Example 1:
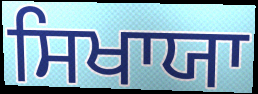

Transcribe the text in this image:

ਸਿਖਾਯਾ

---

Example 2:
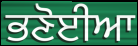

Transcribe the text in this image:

ਭਣੋਈਆ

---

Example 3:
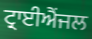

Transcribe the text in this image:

ਟ੍ਰਾਈਐਂਜਲ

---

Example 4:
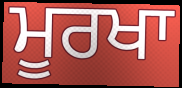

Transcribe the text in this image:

ਮੂਰਖਾ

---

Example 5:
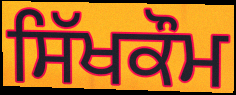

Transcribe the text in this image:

ਸਿੱਖਕੌਮ